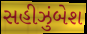
સહીઝુંબેશ